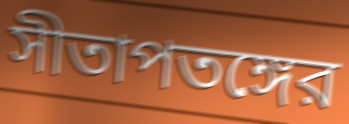
সীতাপতঙ্গের